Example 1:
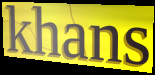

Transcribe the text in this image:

khans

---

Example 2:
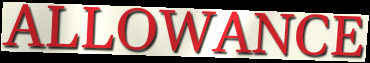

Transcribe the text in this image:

ALLOWANCE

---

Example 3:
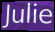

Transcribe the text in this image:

Julie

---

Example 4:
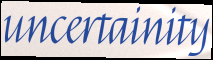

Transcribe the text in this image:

uncertainity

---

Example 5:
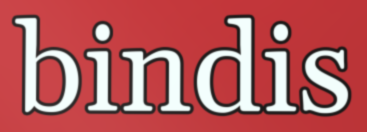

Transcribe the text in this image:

bindis